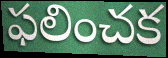
ఫలించక